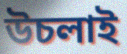
উচলাই